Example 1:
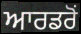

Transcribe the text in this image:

ਆਰਡਰੋਂ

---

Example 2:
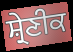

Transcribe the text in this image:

ਸ਼੍ਰੇਣੀਕ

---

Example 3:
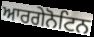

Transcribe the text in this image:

ਆਰਗੇਨੋਟਿਨ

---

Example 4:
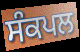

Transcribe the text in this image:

ਸੰਕਪਲ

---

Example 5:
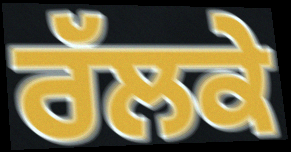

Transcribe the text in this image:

ਰੱਲਕੇ